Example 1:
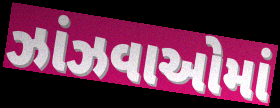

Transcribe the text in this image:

ઝાંઝવાઓમાં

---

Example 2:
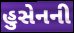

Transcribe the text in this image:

હુસેનની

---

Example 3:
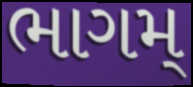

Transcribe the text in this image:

ભાગમ્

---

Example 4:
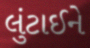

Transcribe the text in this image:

લુંટાઈને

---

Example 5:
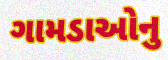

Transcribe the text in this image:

ગામડાઓનુ